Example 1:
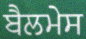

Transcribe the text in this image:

ਬੈਲਮੇਸ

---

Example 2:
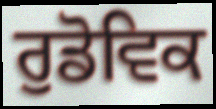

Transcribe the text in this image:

ਰੁਡੋਵਿਕ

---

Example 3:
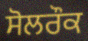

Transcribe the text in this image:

ਸੋਲਰੌਕ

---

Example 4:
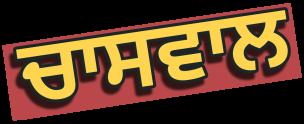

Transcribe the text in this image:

ਚਾਸਵਾਲ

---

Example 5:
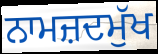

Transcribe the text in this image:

ਨਾਮਜ਼ਦਮੁੱਖ